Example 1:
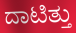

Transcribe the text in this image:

ದಾಟಿತ್ತು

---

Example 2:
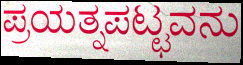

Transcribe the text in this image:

ಪ್ರಯತ್ನಪಟ್ಟವನು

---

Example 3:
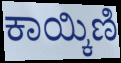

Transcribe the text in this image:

ಕಾಯ್ಕಿಣಿ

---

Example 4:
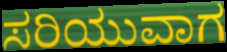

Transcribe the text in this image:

ಸರಿಯುವಾಗ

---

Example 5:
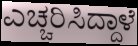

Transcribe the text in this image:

ಎಚ್ಚರಿಸಿದ್ದಾಳೆ